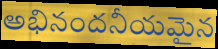
అభినందనీయమైన